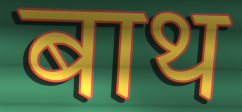
बाथ